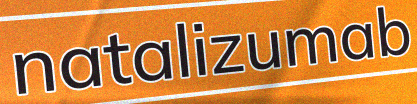
natalizumab